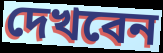
দেখবেন